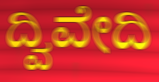
ದ್ವಿವೇದಿ